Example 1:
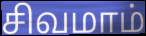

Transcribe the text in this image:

சிவமாம்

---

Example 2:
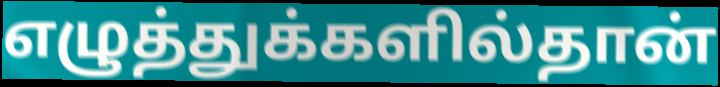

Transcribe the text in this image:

எழுத்துக்களில்தான்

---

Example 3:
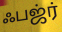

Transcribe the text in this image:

ஃபஜ்ர்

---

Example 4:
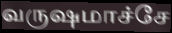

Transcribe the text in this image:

வருஷமாச்சே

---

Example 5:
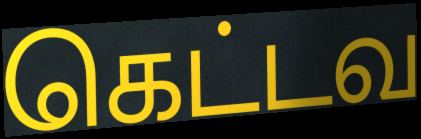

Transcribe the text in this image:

கெட்டவ